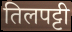
तिलपट्टी